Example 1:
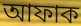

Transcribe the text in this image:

আফাক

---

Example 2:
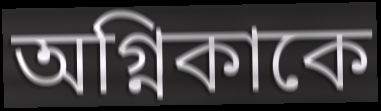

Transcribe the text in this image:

অগ্নিকাকে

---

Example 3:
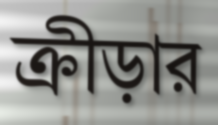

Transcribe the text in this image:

ক্রীড়ার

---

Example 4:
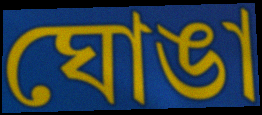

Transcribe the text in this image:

ঘোঙা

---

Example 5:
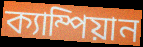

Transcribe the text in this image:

ক্যাম্পিয়ান